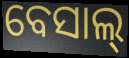
ବେସାଲ୍